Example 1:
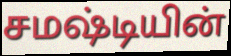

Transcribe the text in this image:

சமஷ்டியின்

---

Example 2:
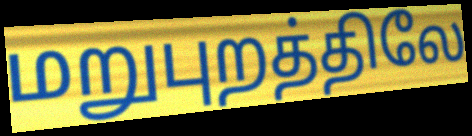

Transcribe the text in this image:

மறுபுறத்திலே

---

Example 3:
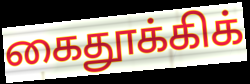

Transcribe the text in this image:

கைதூக்கிக்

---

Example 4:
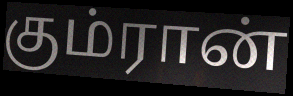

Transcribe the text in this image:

கும்ரான்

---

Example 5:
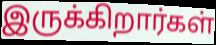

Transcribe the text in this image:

இருக்கிறார்கள்